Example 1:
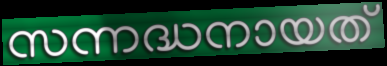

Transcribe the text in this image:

സന്നദ്ധനായത്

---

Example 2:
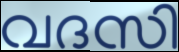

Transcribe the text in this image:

വദസി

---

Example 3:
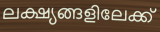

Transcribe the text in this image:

ലക്ഷ്യങ്ങളിലേക്ക്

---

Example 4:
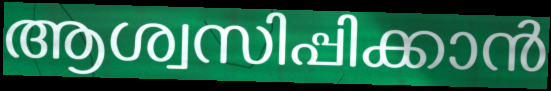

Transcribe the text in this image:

ആശ്വസിപ്പിക്കാൻ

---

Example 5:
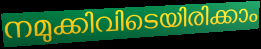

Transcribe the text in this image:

നമുക്കിവിടെയിരിക്കാം